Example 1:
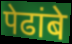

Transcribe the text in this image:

पेढांबे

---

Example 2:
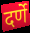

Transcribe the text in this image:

दर्णे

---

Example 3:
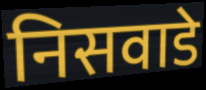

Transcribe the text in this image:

निसवाडे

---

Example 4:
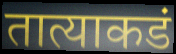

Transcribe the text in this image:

तात्याकडं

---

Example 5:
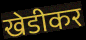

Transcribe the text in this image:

खेडीकर